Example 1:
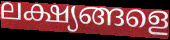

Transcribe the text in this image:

ലക്ഷ്യങ്ങളെ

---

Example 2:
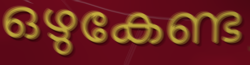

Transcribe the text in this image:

ഒഴുകേണ്ട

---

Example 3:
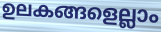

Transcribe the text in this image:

ഉലകങ്ങളെല്ലാം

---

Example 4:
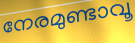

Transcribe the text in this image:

നേരമുണ്ടാവൂ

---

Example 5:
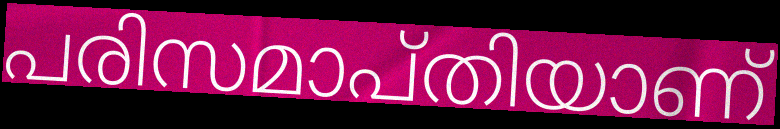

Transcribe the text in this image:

പരിസമാപ്തിയാണ്